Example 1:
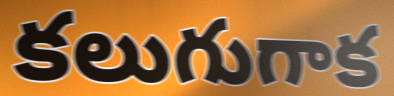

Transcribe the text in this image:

కలుగుగాక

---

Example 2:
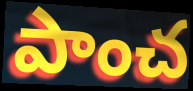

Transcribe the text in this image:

పాంచ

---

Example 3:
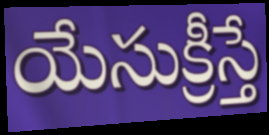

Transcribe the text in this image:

యేసుక్రీస్తే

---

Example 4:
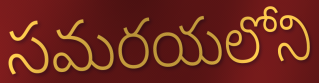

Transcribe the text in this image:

సమరయలోని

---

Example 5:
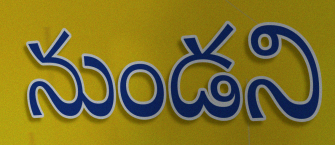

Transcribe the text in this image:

నుండని